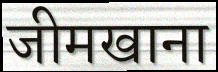
जीमखाना